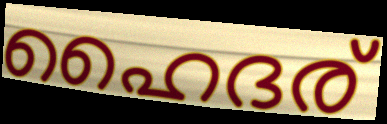
ഹൈദര്